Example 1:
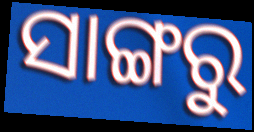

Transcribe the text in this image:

ସାଙ୍ଗରୁ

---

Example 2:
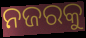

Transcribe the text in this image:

ନଜରକୁ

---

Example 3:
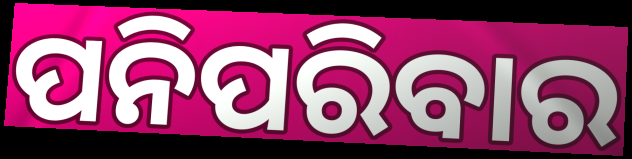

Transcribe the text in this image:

ପନିପରିବାର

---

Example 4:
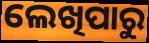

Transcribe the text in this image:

ଲେଖିପାରୁ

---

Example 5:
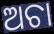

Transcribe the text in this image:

ଅଚା